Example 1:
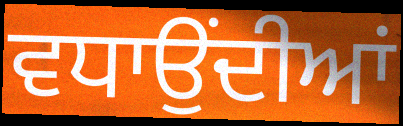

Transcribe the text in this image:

ਵਧਾਉਂਦੀਆਂ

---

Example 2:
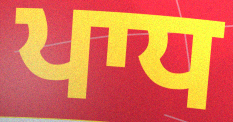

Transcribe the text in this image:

ਪਾਧ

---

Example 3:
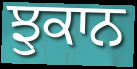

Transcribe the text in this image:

ਝੁਕਾਨ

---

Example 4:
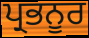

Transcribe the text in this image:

ਪ੍ਰਭਨੂਰ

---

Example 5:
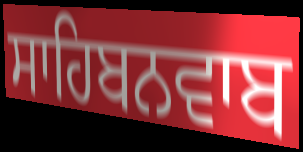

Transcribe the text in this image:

ਸਾਹਿਬਨਵਾਬ